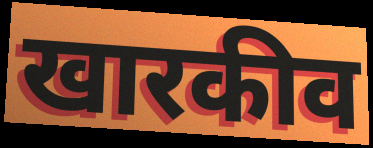
खारकीव